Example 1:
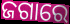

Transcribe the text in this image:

ଜଗାରେ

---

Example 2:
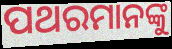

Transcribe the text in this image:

ପଥରମାନଙ୍କୁ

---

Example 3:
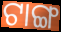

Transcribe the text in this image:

ଟାଙ୍ଗ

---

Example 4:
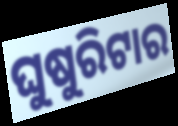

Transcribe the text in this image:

ଘୁଷୁରିଟାର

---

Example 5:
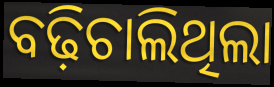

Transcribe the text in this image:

ବଢ଼ିଚାଲିଥିଲା